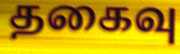
தகைவு